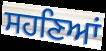
ਸਹਣਿਆਂ